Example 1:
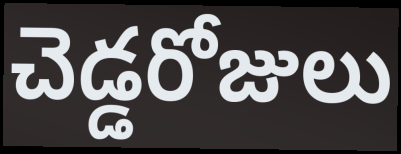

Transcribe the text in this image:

చెడ్డరోజులు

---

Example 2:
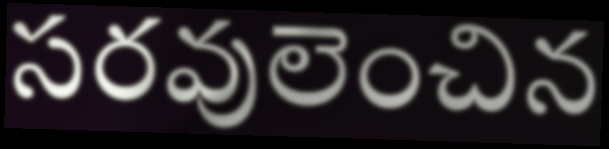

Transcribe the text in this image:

సరవులెంచిన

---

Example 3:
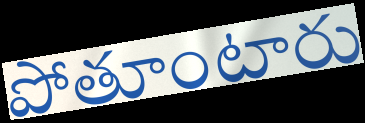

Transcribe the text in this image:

పోతూంటారు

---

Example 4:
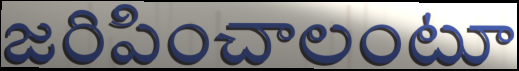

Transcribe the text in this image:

జరిపించాలంటూ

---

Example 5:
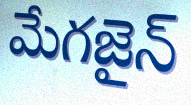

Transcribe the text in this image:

మేగజైన్